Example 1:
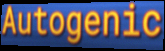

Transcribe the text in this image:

Autogenic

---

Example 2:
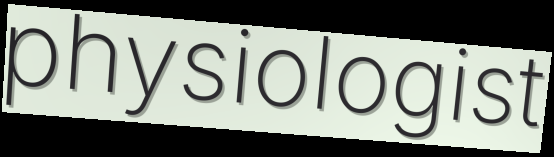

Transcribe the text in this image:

physiologist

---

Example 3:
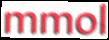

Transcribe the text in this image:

mmol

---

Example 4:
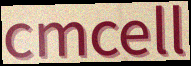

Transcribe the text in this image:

cmcell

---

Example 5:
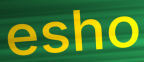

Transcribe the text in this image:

esho